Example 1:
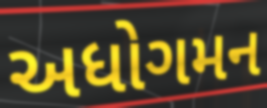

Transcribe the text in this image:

અધોગમન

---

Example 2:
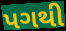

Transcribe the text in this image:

પગથી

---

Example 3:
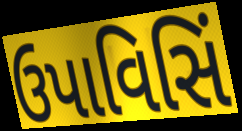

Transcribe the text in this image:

ઉપાવિસિં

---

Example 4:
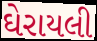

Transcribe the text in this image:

ઘેરાયલી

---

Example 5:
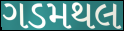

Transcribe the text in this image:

ગડમથલ